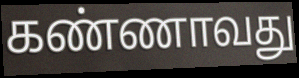
கண்ணாவது